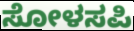
ಸೋಳಸಪಿ